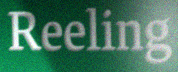
Reeling